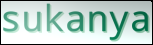
sukanya